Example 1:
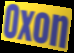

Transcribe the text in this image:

Oxon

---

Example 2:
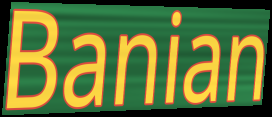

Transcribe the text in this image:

Banian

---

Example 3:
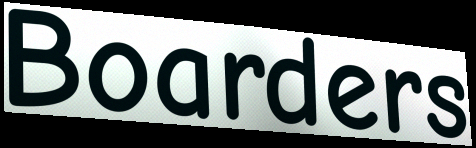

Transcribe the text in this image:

Boarders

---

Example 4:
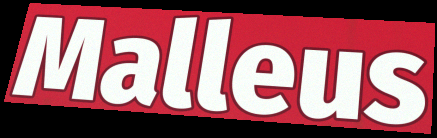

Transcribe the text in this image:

Malleus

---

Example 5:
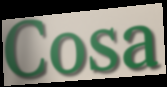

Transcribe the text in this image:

Cosa